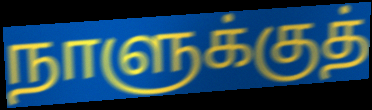
நாளுக்குத்